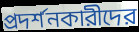
প্রদর্শনকারীদের